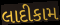
લાદીકામ